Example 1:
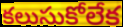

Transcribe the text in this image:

కలుసుకోలేక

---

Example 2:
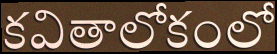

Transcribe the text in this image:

కవితాలోకంలో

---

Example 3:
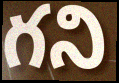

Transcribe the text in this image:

గని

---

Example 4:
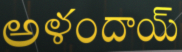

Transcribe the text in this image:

అళందాయ్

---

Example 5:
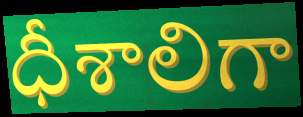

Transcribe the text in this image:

ధీశాలిగా